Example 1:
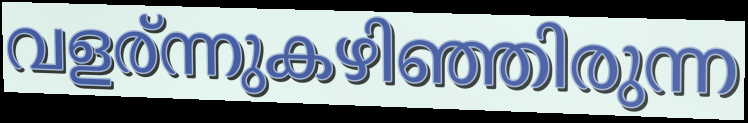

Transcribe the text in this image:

വളര്ന്നുകഴിഞ്ഞിരുന്ന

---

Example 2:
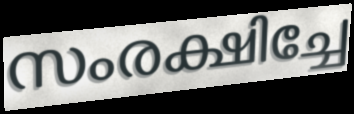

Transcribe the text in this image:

സംരക്ഷിച്ചേ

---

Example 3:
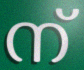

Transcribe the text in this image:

ന്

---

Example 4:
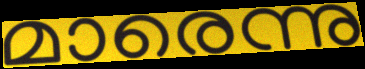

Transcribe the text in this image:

മാരെന്നു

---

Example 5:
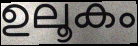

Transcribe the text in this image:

ഉലൂകം